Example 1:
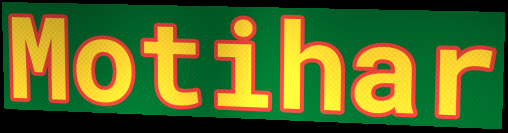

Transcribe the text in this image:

Motihar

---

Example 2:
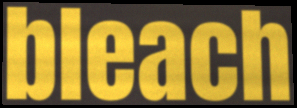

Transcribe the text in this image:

bleach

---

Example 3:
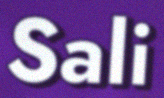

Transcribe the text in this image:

Sali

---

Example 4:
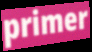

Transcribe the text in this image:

primer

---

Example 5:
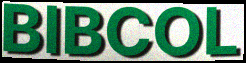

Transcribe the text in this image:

BIBCOL